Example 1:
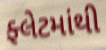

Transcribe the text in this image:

ફ્લેટમાંથી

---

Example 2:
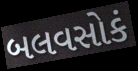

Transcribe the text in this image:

બલવસોકં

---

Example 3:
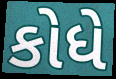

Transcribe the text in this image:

કોધે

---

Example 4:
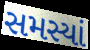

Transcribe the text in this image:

સમસ્યાં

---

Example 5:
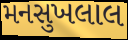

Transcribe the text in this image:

મનસુખલાલ